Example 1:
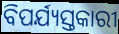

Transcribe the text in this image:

ବିପର୍ଯ୍ୟସ୍ତକାରୀ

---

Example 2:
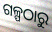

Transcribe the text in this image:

ଗଳ୍ପଠାରୁ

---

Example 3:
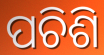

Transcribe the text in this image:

ପଚିଶି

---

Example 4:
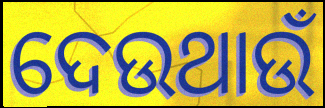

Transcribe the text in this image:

ଦେଉଥାଉଁ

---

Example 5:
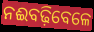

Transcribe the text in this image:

ନଈବଢ଼ିବେଳେ